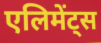
एलिमेंट्स